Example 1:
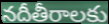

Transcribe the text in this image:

నదీతీరాలకు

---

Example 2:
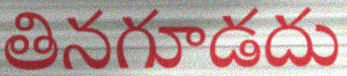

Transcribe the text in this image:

తినగూడదు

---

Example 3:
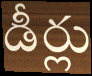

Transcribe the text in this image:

డీర్లు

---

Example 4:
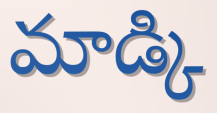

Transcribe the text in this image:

మాడ్కి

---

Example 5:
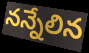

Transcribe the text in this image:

నన్నేలిన